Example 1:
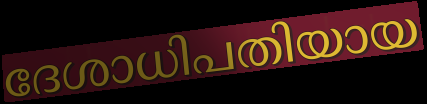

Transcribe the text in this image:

ദേശാധിപതിയായ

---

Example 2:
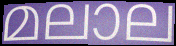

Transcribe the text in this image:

മലാല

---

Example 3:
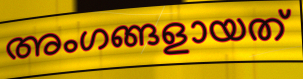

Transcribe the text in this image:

അംഗങ്ങളായത്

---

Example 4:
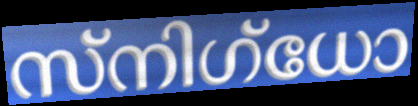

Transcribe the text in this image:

സ്നിഗ്ധോ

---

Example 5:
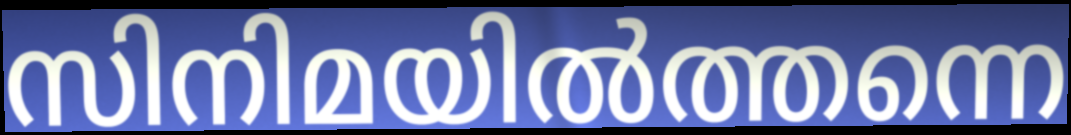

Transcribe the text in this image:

സിനിമയിൽത്തന്നെ